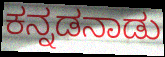
ಕನ್ನಡನಾಡು